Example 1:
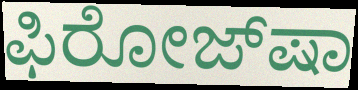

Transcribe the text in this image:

ಫಿರೋಜ್‌ಷಾ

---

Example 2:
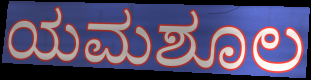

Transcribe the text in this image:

ಯಮಶೂಲ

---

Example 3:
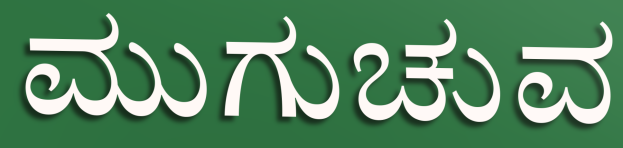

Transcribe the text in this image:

ಮುಗುಚುವ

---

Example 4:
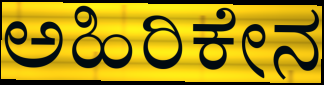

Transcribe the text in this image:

ಅಹಿರಿಕೇನ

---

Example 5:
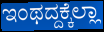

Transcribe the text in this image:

ಇಂಥದ್ದಕ್ಕೆಲ್ಲಾ